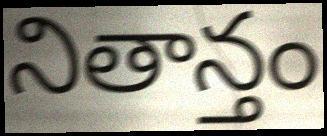
నితాన్తం